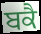
ਬਕੈ